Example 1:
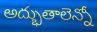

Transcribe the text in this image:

అద్భుతాలెన్నో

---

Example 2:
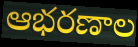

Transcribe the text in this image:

ఆభరణాల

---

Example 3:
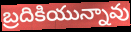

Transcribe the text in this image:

బ్రదికియున్నావు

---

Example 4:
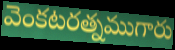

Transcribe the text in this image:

వెంకటరత్నముగారు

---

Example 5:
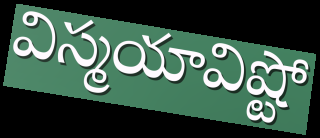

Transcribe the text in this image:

విస్మయావిష్టో